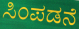
ಸಿಂಪಡನೆ